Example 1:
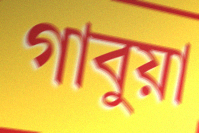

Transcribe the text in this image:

গাবুয়া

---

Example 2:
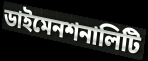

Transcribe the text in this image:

ডাইমেনশনালিটি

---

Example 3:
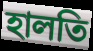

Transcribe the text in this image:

হালতি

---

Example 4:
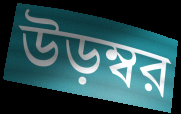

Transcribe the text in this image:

উড়ম্বর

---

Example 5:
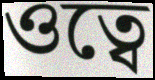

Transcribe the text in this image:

ওত্বে